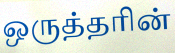
ஒருத்தரின்